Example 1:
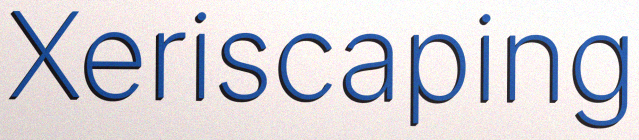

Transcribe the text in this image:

Xeriscaping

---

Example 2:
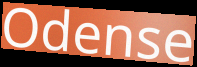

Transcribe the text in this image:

Odense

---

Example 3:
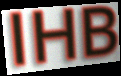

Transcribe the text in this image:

IHB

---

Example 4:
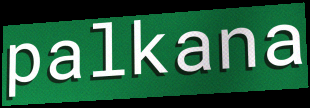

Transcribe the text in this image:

palkana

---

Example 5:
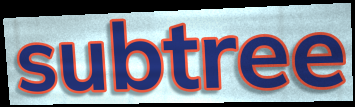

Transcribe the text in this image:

subtree